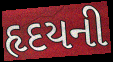
હૃદયની